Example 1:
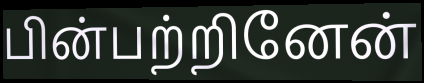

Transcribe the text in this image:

பின்பற்றினேன்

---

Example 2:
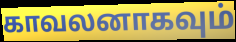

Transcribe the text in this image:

காவலனாகவும்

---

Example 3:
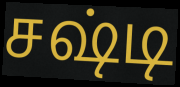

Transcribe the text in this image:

சஷ்டி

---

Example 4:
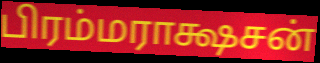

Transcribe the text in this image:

பிரம்மராக்ஷசன்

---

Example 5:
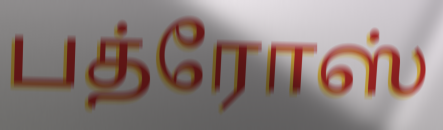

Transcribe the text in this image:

பத்ரோஸ்